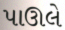
પાઊલે